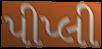
પીપ્લી